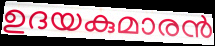
ഉദയകുമാരൻ